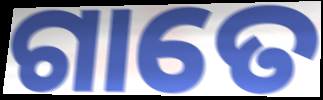
ଗାତେ